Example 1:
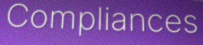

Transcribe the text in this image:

Compliances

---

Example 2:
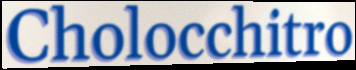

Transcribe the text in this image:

Cholocchitro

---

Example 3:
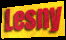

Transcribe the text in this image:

Lesny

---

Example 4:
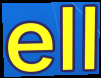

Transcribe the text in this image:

ell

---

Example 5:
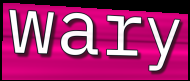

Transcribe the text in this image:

wary